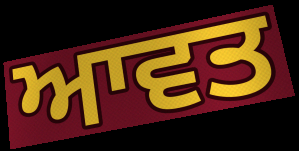
ਆਵਤ